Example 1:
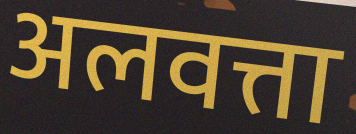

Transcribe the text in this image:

अलवत्ता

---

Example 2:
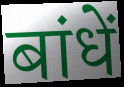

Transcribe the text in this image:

बांधें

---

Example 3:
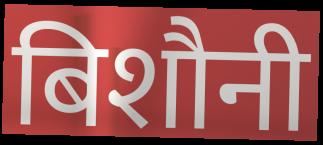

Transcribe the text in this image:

बिशौनी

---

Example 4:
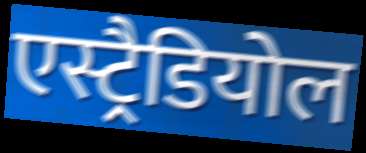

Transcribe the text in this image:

एस्ट्रैडियोल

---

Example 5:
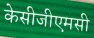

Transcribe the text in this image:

केसीजीएमसी